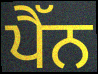
ਪੈੱਨ